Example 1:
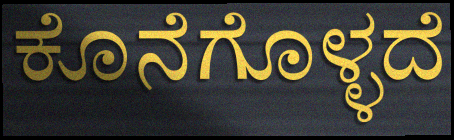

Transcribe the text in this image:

ಕೊನೆಗೊಳ್ಳದೆ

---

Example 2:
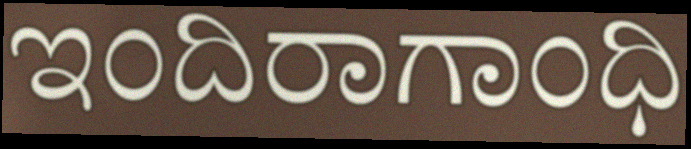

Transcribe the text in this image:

ಇಂದಿರಾಗಾಂಧಿ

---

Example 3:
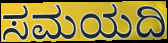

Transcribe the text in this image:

ಸಮಯದಿ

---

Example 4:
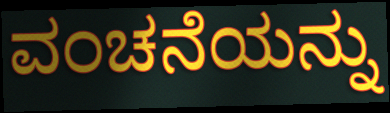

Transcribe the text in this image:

ವಂಚನೆಯನ್ನು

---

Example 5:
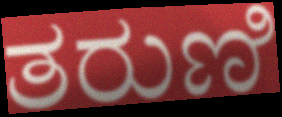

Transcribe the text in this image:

ತರುಣಿ